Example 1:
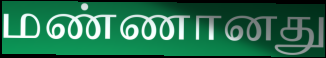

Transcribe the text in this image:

மண்ணானது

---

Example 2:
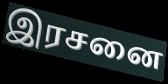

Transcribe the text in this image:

இரசனை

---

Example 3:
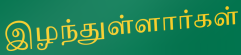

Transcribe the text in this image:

இழந்துள்ளார்கள்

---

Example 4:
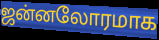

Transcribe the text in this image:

ஜன்னலோரமாக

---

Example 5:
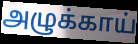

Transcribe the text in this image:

அழுக்காய்